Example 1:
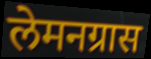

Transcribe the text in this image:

लेमनग्रास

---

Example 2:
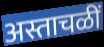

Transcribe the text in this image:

अस्ताचळीं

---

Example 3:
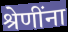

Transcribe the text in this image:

श्रेणींना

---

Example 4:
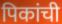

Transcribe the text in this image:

पिकांची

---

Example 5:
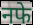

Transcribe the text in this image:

नफे